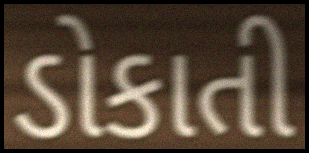
ડોકાતી